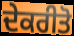
ਦੇਕਰੀਤੋ